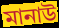
মানাউ